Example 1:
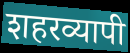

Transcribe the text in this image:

शहरव्यापी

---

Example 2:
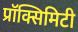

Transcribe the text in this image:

प्रॉक्सिमिटी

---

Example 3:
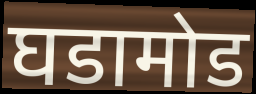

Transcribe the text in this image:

घडामोड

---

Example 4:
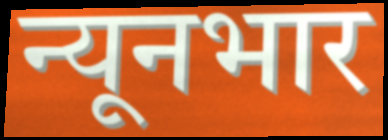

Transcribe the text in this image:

न्यूनभार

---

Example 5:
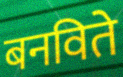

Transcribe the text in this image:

बनविते